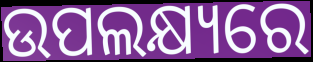
ଉପଲକ୍ଷ୍ୟରେ